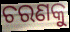
ଚରଣକୁ